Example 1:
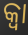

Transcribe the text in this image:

କ୍ଵା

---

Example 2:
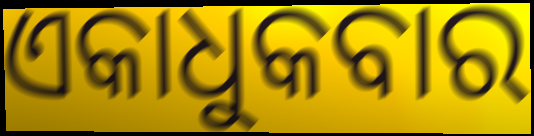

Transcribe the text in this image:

ଏକାଧୁକବାର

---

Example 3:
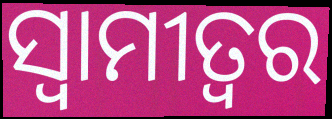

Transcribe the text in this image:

ସ୍ଵାମୀତ୍ୱର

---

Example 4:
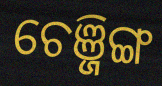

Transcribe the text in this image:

ଚେଞ୍ଜିଙ୍ଗ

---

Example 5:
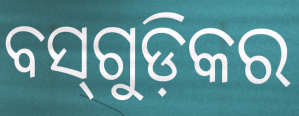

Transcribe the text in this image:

ବସ୍‌ଗୁଡ଼ିକର